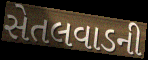
સેતલવાડની